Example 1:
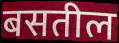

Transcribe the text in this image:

बसतील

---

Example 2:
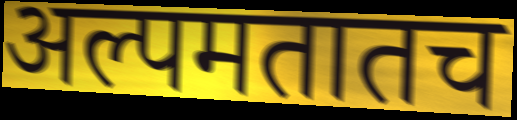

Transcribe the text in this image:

अल्पमतातच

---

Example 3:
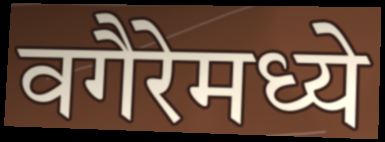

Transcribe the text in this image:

वगैरेमध्ये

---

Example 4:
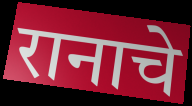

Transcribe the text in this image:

रानाचे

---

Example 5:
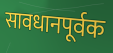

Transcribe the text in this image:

सावधानपूर्वक